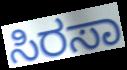
ಸಿರಸಾ